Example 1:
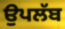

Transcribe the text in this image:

ਉਪਲੱਬ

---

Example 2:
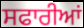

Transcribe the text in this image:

ਸਫਾਰੀਆਂ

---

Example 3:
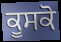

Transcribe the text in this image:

ਕੂਸਕੋ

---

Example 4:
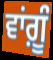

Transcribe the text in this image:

ਵਾਂਗ਼ੂੰ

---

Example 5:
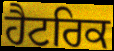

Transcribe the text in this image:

ਹੈਟਰਿਕ